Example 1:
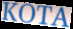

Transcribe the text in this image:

KOTA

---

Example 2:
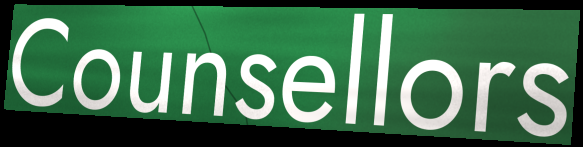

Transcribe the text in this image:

Counsellors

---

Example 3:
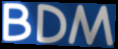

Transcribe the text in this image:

BDM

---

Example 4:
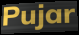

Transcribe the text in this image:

Pujar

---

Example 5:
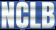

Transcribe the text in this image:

NCLB